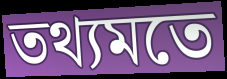
তথ্যমতে